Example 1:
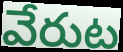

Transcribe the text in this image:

వేరుట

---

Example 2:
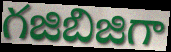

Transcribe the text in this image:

గజిబిజిగా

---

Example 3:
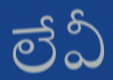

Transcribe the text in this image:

లేవీ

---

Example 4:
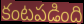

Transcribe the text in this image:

కంటపడింది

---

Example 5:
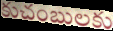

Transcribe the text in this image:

కుచంబులకు